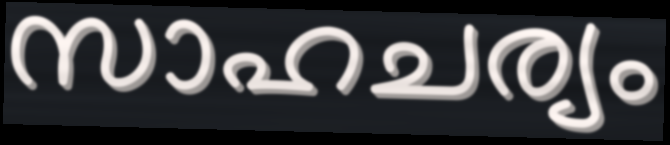
സാഹചര്യം